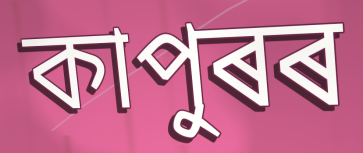
কাপুৰৰ